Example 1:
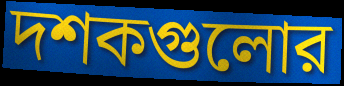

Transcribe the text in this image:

দশকগুলোর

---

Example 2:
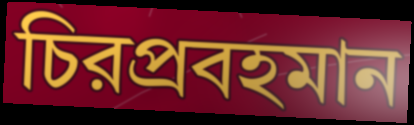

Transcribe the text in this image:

চিরপ্রবহমান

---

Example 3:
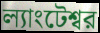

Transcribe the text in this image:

ল্যাংটেশ্বর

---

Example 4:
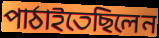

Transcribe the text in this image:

পাঠাইতেছিলেন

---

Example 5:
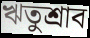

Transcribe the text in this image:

ঋতুশ্রাব